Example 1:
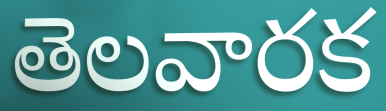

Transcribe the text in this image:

తెలవారక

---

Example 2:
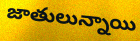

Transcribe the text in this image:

జాతులున్నాయి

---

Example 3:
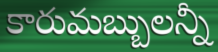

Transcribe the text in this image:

కారుమబ్బులన్నీ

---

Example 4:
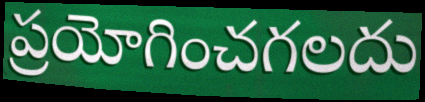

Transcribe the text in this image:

ప్రయోగించగలదు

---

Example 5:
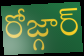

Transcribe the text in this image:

రోజ్గార్